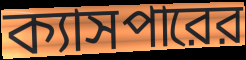
ক্যাসপারের